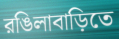
রঙিলাবাড়িতে